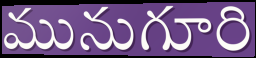
మునుగూరి